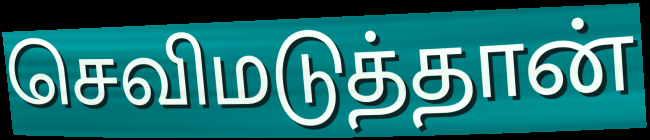
செவிமடுத்தான்